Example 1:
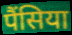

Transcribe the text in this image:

पैंसिया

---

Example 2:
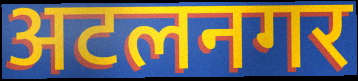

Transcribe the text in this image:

अटलनगर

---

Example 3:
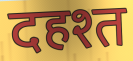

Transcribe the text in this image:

दहश्त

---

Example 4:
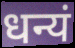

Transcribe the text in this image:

धन्यं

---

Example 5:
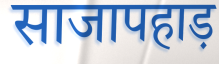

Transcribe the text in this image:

साजापहाड़